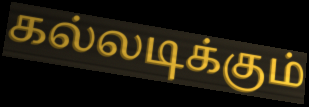
கல்லடிக்கும்